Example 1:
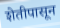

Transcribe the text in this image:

शेतीपासून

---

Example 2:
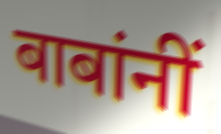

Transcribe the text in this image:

बाबांनीं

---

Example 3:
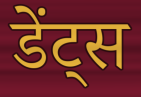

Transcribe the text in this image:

डेंट्स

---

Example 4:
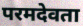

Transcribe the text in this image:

परमदेवता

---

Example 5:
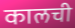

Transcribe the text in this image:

कालची